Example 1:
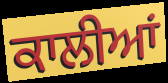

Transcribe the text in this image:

ਕਾਲੀਆਂ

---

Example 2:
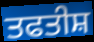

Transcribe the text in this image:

ਤਫਤੀਸ਼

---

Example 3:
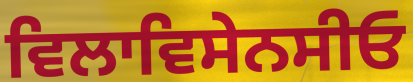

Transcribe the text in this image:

ਵਿਲਾਵਿਸੇਨਸੀਓ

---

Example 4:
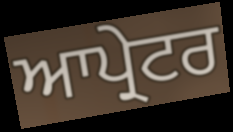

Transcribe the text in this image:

ਆਪ੍ਰੇਟਰ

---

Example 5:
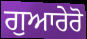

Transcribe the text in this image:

ਗੁਆਰੇਰੋ